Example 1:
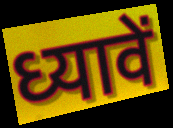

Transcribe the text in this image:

ध्यावें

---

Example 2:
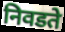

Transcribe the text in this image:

निवडते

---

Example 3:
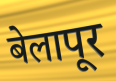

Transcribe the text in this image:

बेलापूर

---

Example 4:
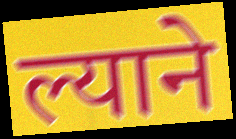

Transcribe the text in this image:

ल्याने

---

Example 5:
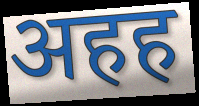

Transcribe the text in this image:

अहह